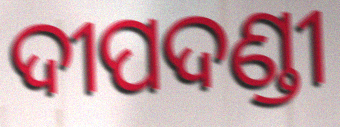
ଦୀପଦଣ୍ଡୀ